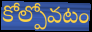
కోల్పోవటం